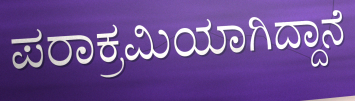
ಪರಾಕ್ರಮಿಯಾಗಿದ್ದಾನೆ